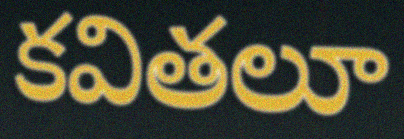
కవితలూ